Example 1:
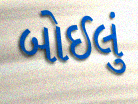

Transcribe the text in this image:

બોઈલું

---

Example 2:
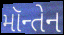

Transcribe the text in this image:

મૉન્તેન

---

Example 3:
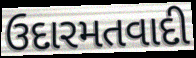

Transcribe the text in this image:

ઉદારમતવાદી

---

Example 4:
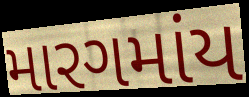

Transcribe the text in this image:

મારગમાંય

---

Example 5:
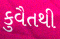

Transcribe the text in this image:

કુવૈતથી